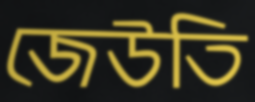
জেউতি